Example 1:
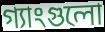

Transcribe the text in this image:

গ্যাংগুলো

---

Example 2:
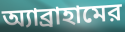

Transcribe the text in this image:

অ্যাব্রাহামের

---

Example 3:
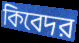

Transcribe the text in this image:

কিবেদর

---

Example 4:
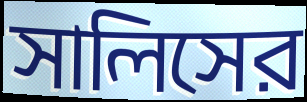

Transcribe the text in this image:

সালিসের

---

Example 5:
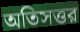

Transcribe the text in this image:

অতিসত্তর